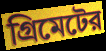
গ্রিমেটের